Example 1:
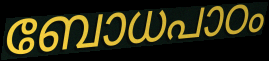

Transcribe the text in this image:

ബോധപാഠം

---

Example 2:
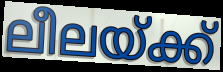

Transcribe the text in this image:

ലീലയ്ക്ക്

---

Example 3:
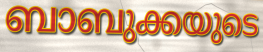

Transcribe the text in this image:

ബാബുക്കയുടെ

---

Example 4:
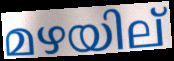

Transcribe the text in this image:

മഴയില്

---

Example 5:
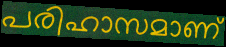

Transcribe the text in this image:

പരിഹാസമാണ്